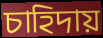
চাহিদায়